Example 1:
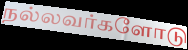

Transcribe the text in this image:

நல்லவர்களோடு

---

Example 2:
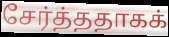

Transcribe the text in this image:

சேர்த்ததாகக்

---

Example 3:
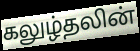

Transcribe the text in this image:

கலுழ்தலின்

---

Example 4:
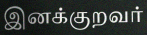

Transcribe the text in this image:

இனக்குறவர்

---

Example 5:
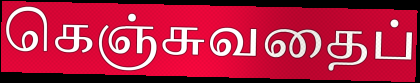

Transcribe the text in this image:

கெஞ்சுவதைப்